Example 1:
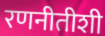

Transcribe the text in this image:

रणनीतीशी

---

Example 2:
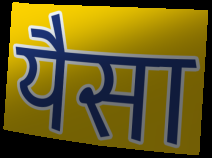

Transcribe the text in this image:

यैसा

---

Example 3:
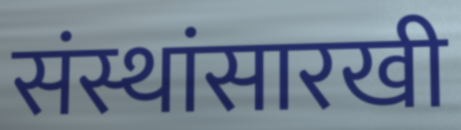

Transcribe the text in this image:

संस्थांसारखी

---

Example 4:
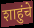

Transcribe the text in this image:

शाहुंचे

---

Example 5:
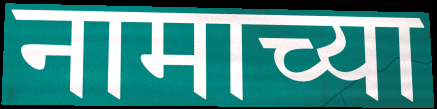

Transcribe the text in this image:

नामाच्या